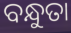
ବନ୍ଧୁତା